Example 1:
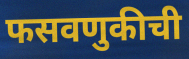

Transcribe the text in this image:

फसवणुकीची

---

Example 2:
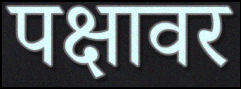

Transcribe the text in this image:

पक्षावर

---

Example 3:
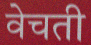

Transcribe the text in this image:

वेचती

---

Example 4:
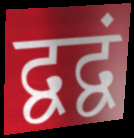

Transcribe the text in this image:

द्वद्वं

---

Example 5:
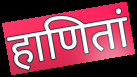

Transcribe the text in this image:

हाणितां